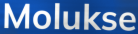
Molukse